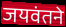
जयवंतने